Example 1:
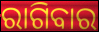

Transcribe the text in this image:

ରାଗିବାର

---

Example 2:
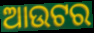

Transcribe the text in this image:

ଆଉଟର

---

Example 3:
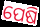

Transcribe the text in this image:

ପେଷି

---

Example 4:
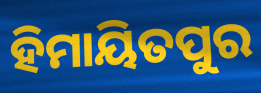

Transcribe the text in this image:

ହିମାୟିତପୁର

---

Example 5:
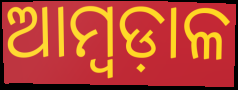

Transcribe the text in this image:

ଆମ୍ବଡ଼ାଳ